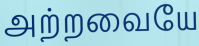
அற்றவையே